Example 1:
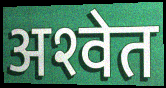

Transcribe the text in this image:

अश्वेत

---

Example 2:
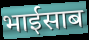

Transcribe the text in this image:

भाईसाब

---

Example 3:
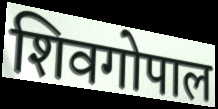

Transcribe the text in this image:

शिवगोपाल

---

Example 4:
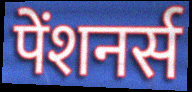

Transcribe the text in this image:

पेंशनर्स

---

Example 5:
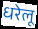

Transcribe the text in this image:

धरेलू